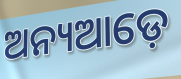
ଅନ୍ୟଆଡ଼େ